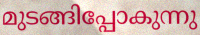
മുടങ്ങിപ്പോകുന്നു